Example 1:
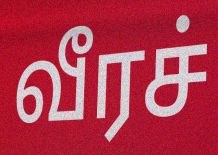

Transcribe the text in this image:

வீரச்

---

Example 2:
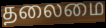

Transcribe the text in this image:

தலைமை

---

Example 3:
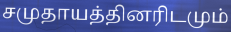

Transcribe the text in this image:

சமுதாயத்தினரிடமும்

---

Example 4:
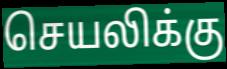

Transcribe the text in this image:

செயலிக்கு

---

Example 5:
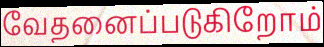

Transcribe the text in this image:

வேதனைப்படுகிறோம்